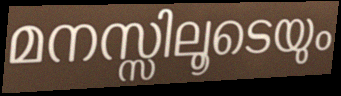
മനസ്സിലൂടെയും